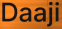
Daaji